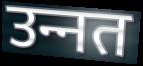
उन्‍नत